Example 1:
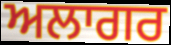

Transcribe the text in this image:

ਅਲਾਗਰ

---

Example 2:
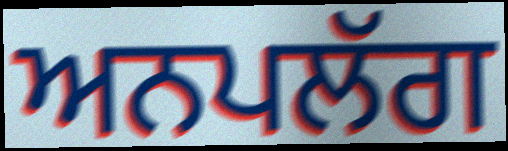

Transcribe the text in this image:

ਅਨਪਲੱਗ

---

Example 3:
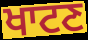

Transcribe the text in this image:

ਖਾਟਣ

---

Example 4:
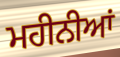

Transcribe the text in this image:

ਮਹੀਨੀਆਂ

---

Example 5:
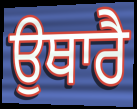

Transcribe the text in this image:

ਉਥਾਰੈ